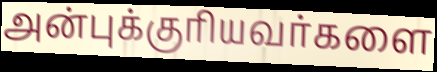
அன்புக்குரியவர்களை